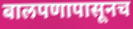
बालपणापासूनच